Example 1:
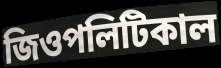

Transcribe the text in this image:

জিওপলিটিকাল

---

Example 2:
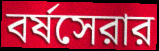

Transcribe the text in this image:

বর্ষসেরার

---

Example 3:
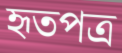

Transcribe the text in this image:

হৃতপত্র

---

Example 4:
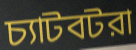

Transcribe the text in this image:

চ্যাটবটরা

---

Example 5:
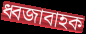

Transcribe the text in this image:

ধ্বজাবাহক